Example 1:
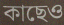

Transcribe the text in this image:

কাছেও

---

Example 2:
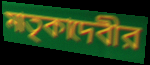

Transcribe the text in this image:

মাতৃকাদেবীর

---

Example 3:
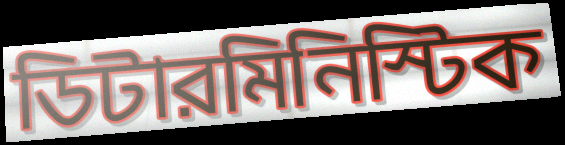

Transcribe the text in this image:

ডিটারমিনিস্টিক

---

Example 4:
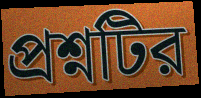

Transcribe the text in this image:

প্রশ্নটির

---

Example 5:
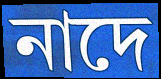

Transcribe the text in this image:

নাদে